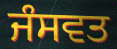
ਜੰਸਵਤ